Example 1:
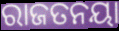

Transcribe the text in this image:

ରାଜତନୟା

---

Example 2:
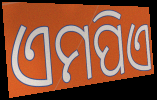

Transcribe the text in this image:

ଏମପିଏ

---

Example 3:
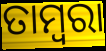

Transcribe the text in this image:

ତାମ୍ବରା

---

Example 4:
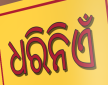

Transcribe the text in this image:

ଧରିନିଏଁ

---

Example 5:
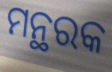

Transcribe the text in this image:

ମନ୍ଥରକ